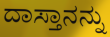
ದಾಸ್ತಾನನ್ನು